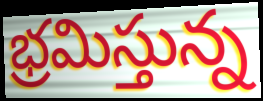
భ్రమిస్తున్న